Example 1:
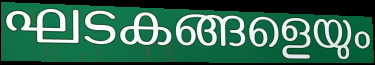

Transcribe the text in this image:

ഘടകങ്ങളെയും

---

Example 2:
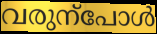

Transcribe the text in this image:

വരുന്പോൾ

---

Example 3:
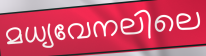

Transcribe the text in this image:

മധ്യവേനലിലെ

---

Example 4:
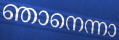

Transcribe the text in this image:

ഞാനെന്നാ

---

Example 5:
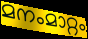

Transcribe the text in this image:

മനംമാറ്റം